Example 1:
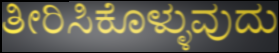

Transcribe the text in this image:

ತೀರಿಸಿಕೊಳ್ಳುವುದು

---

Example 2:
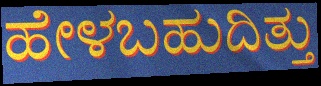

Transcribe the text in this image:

ಹೇಳಬಹುದಿತ್ತು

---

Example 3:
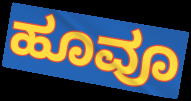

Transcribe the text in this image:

ಹೂವೂ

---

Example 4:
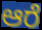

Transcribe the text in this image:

ಆರೆ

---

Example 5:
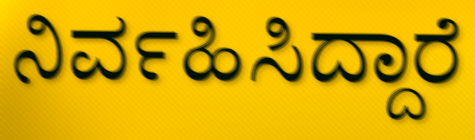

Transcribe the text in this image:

ನಿರ್ವಹಿಸಿದ್ದಾರೆ